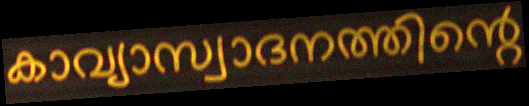
കാവ്യാസ്വാദനത്തിന്റെ